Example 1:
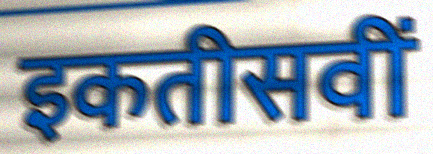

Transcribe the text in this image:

इकतीसवीं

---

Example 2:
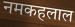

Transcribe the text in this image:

नमकहलाल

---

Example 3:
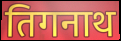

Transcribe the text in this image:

तिगनाथ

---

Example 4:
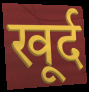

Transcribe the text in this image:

खूर्द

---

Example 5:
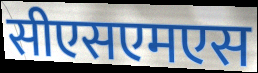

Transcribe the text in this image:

सीएसएमएस